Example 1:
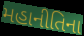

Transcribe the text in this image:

મહાનીતિના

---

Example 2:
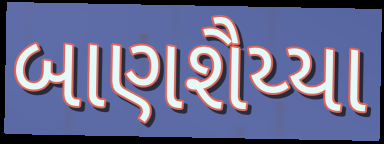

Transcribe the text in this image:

બાણશૈય્યા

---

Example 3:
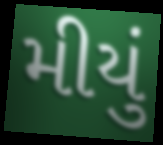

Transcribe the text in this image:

મીયું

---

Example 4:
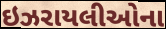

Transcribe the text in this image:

ઇઝરાયલીઓના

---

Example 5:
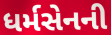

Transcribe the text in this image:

ધર્મસેનની